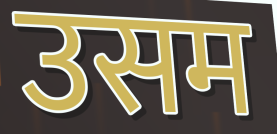
उसम